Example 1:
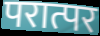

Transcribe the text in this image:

परात्पर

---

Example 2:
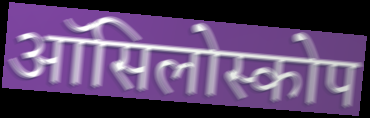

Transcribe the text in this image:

ऑसिलोस्कोप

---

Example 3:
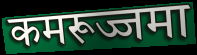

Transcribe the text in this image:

कमरूज्जमा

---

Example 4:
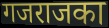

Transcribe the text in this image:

गजराजका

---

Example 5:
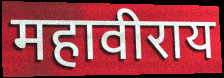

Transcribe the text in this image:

महावीराय